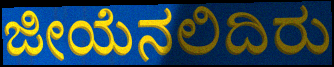
ಜೀಯೆನಲಿದಿರು